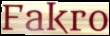
Fakro